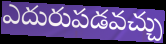
ఎదురుపడవచ్చు